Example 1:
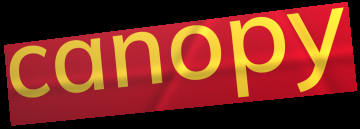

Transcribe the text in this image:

canopy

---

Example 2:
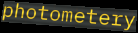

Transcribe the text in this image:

photometery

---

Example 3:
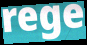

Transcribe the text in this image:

rege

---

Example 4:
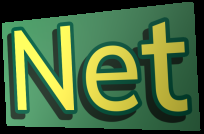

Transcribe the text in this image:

Net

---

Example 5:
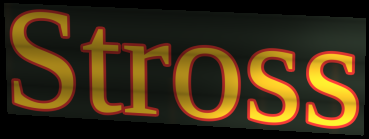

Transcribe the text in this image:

Stross